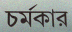
চর্মকার